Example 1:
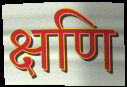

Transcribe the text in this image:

क्षणि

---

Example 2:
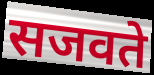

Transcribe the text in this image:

सजवते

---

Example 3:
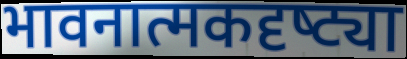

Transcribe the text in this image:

भावनात्मकदृष्ट्या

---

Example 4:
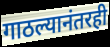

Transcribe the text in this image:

गाठल्यानंतरही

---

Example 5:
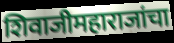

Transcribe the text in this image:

शिवाजीमहाराजांचा